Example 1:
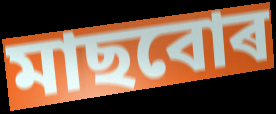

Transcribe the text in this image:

মাছবোৰ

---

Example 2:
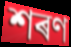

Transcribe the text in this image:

শৰণ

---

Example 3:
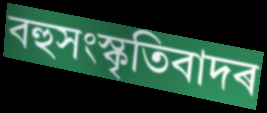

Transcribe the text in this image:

বহুসংস্কৃতিবাদৰ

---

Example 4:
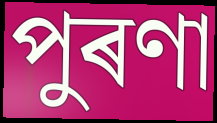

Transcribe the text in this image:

পুৰণা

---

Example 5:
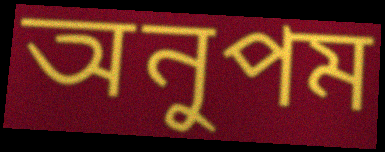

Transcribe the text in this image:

অনুপম